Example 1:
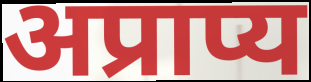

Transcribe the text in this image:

अप्राप्य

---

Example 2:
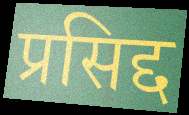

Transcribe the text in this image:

प्रसिद्द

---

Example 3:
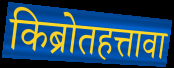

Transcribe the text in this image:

किब्रोतहत्तावा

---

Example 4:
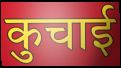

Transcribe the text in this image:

कुचाई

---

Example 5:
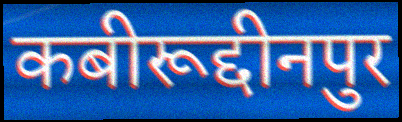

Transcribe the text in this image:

कबीरूद्दीनपुर